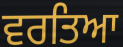
ਵਰਤਿਆ